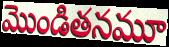
మొండితనమూ